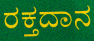
ರಕ್ತದಾನ